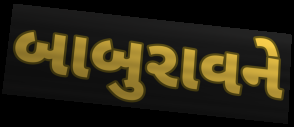
બાબુરાવને